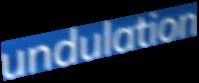
undulation